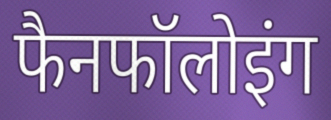
फैनफॉलोइंग